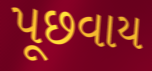
પૂછવાય